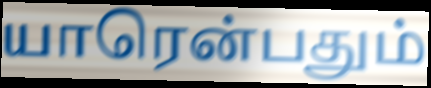
யாரென்பதும்